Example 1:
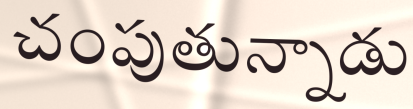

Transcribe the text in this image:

చంపుతున్నాడు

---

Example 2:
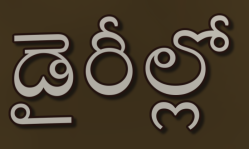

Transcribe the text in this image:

డైరీల్లో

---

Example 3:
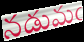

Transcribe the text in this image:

నడుమఁ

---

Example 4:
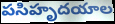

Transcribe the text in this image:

పసిహృదయాల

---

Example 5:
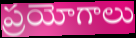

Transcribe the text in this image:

ప్రయోగాలు